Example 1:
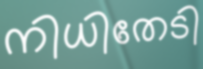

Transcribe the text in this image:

നിധിതേടി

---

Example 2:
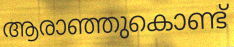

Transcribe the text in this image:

ആരാഞ്ഞുകൊണ്ട്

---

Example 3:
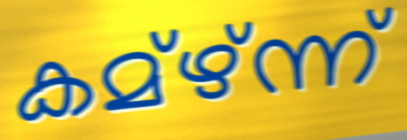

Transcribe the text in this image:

കമ്ഴ്ന്ന്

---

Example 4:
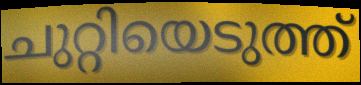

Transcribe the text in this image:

ചുറ്റിയെടുത്ത്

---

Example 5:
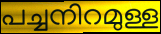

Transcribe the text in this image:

പച്ചനിറമുള്ള